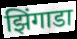
झिंगाडा